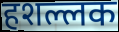
हशल्लक